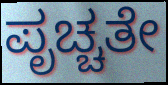
ಪೃಚ್ಚತೇ